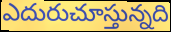
ఎదురుచూస్తున్నది